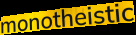
monotheistic